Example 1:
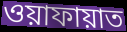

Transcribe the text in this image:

ওয়াফায়াত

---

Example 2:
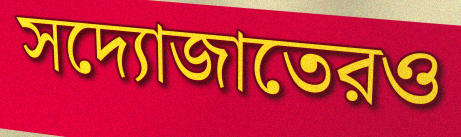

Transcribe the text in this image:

সদ্যোজাতেরও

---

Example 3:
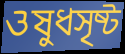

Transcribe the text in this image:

ওষুধসৃষ্ট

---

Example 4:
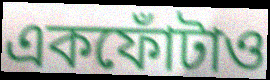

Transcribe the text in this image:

একফোঁটাও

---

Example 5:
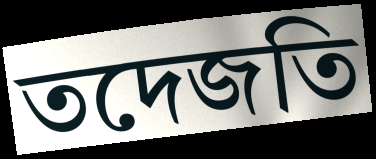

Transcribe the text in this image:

তদেজতি